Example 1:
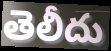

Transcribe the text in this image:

తెలీదు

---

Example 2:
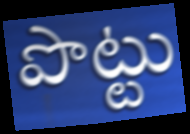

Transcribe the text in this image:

పొట్టు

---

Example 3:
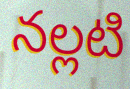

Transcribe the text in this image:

నల్లటి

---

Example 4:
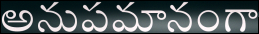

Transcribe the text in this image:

అనుపమానంగా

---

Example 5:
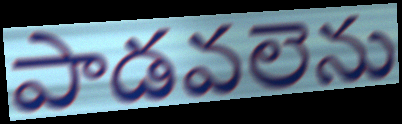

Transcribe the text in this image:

పాడవలెను